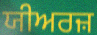
ਯੀਅਰਜ਼